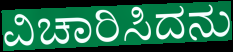
ವಿಚಾರಿಸಿದನು